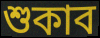
শুকাব